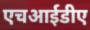
एचआईडीए